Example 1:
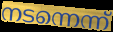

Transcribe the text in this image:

നടന്നെന്ന്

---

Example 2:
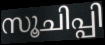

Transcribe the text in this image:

സൂചിപ്പി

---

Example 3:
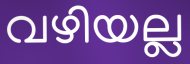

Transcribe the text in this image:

വഴിയല്ല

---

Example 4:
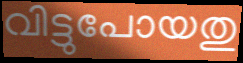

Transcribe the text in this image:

വിട്ടുപോയതു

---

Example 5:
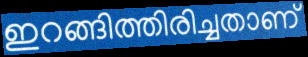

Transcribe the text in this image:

ഇറങ്ങിത്തിരിച്ചതാണ്